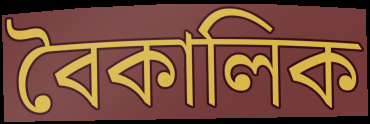
বৈকালিক